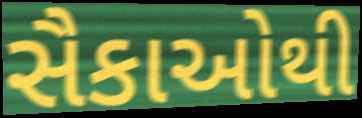
સૈકાઓથી